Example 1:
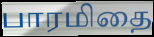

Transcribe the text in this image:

பாரமிதை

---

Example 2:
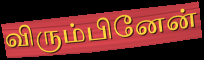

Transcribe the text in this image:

விரும்பினேன்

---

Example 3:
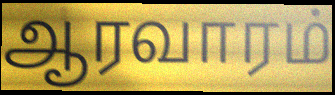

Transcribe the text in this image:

ஆரவாரம்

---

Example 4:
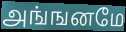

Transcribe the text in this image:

அங்ஙனமே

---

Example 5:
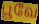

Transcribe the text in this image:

பூவே